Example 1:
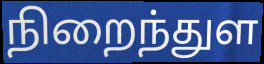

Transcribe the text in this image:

நிறைந்துள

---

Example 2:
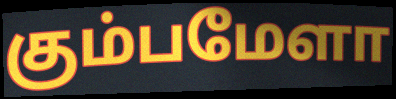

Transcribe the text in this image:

கும்பமேளா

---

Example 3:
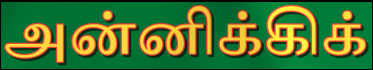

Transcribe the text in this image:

அன்னிக்கிக்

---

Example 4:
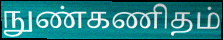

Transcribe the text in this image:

நுண்கணிதம்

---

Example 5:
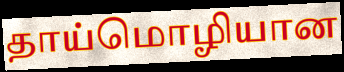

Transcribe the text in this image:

தாய்மொழியான